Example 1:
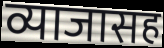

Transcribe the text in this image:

व्याजासह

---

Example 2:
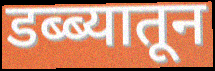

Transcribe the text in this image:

डब्ब्यातून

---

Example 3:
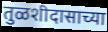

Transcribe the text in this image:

तुळशीदासाच्या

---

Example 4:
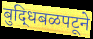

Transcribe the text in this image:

बुद्धिबळपटूने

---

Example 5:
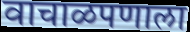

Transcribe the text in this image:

वाचाळपणाला